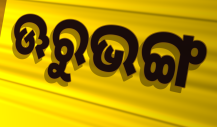
ଊରୁଭଙ୍ଗ